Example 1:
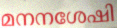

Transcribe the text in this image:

മനനശേഷി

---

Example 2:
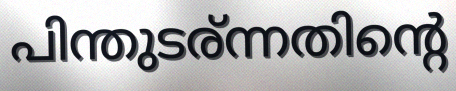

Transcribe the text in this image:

പിന്തുടര്ന്നതിന്റെ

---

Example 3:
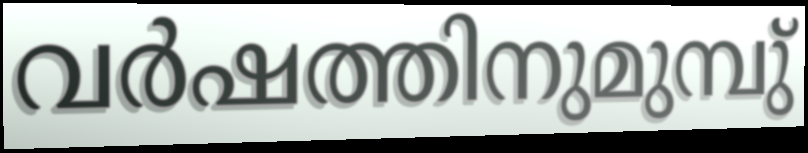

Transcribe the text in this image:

വർഷത്തിനുമുമ്പു്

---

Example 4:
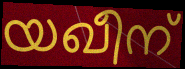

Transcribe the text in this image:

യഖീന്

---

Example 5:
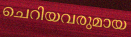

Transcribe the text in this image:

ചെറിയവരുമായ